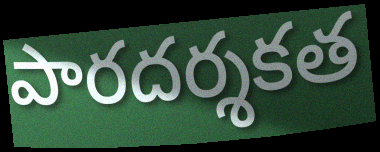
పారదర్శకత